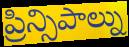
ప్రిన్సిపాల్ను